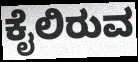
ಕೈಲಿರುವ